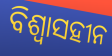
ବିଶ୍ୱାସହୀନ